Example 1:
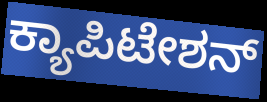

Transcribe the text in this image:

ಕ್ಯಾಪಿಟೇಶನ್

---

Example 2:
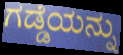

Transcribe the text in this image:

ಗಡ್ಡೆಯನ್ನು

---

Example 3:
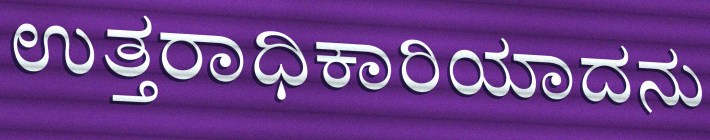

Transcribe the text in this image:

ಉತ್ತರಾಧಿಕಾರಿಯಾದನು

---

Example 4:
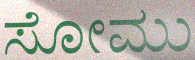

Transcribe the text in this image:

ಸೋಮು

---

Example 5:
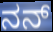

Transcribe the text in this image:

ನನ್